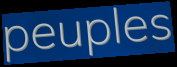
peuples